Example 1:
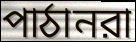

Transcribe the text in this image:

পাঠানরা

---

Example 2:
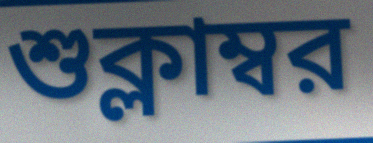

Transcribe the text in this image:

শুক্লাম্বর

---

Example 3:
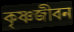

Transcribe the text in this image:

কৃষ্ণজীবন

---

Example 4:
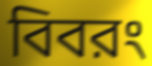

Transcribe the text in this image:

বিবরং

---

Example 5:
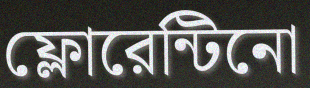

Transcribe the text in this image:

ফ্লোরেন্টিনো